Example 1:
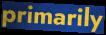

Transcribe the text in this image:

primarily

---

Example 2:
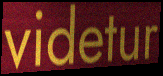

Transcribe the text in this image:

videtur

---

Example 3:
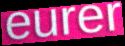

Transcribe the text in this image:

eurer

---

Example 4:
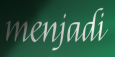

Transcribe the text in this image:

menjadi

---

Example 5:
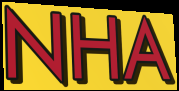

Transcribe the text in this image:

NHA